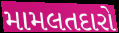
મામલતદારો